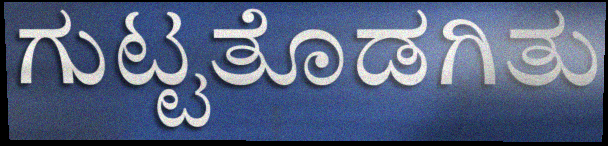
ಗುಟ್ಟತೊಡಗಿತು